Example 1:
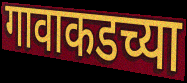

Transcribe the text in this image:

गावाकडच्या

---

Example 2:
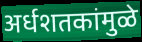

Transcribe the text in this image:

अर्धशतकांमुळे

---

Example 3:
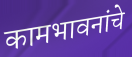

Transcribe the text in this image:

कामभावनांचे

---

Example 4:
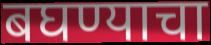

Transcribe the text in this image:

बघण्याचा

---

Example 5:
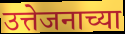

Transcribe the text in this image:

उत्तेजनाच्या